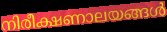
നിരീക്ഷണാലയങ്ങൾ